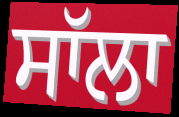
ਸਾੱਲਾ